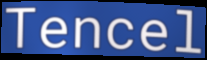
Tencel